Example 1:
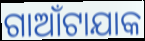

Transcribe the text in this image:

ଗାଆଁଟାଯାକ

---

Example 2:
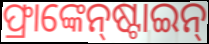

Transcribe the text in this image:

ଫ୍ରାଙ୍କେନ୍‌ଷ୍ଟାଇନ୍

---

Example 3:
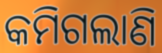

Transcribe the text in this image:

କମିଗଲାଣି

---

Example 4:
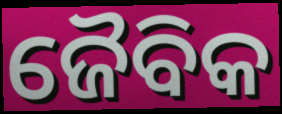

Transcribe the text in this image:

ଜୈବିକ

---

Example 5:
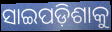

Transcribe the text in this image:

ସାଇପଡ଼ିଶାକୁ